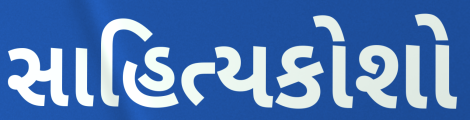
સાહિત્યકોશો